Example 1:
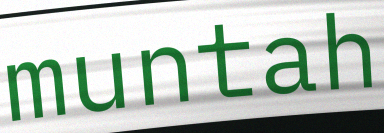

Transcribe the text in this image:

muntah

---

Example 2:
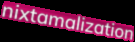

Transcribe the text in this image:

nixtamalization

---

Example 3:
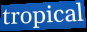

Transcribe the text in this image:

tropical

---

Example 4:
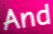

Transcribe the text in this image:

And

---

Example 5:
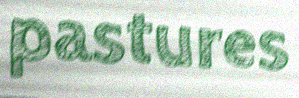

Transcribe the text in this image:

pastures